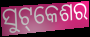
ସୁଟ୍‌କେଶର